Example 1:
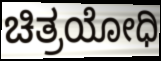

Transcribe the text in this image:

ಚಿತ್ರಯೋಧಿ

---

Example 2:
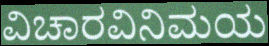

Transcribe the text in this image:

ವಿಚಾರವಿನಿಮಯ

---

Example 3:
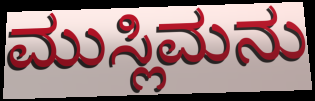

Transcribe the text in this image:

ಮುಸ್ಲಿಮನು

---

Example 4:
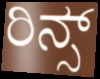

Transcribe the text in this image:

ರಿನ್ಸ್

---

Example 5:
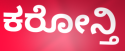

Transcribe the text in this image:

ಕರೋನ್ತಿ